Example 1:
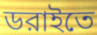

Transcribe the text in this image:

ডরাইতে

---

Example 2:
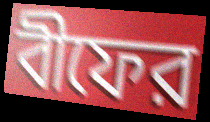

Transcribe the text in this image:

বীফের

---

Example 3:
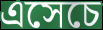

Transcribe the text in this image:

এসেচে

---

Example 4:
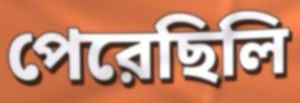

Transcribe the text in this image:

পেরেছিলি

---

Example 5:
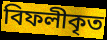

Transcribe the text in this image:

বিফলীকৃত